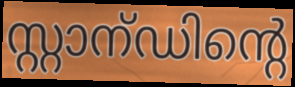
സ്റ്റാന്ഡിന്റെ